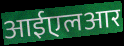
आईएलआर